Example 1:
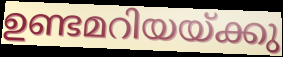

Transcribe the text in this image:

ഉണ്ടമറിയയ്ക്കു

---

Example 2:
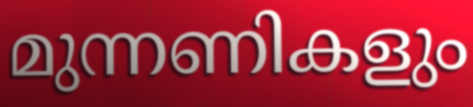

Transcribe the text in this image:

മുന്നണികളും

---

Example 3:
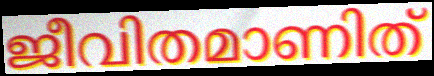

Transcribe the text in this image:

ജീവിതമാണിത്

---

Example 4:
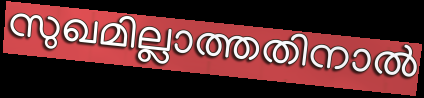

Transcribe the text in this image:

സുഖമില്ലാത്തതിനാൽ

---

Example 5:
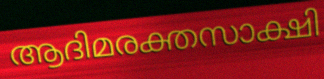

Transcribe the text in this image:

ആദിമരക്തസാക്ഷി